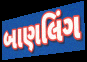
બાણલિંગ